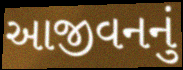
આજીવનનું